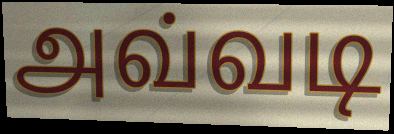
அவ்வடி